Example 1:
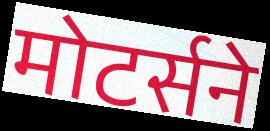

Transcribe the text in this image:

मोटर्सने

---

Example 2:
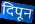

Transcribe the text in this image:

दिपून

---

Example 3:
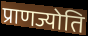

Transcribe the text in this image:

प्राणज्योति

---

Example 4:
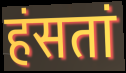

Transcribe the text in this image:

हंसतां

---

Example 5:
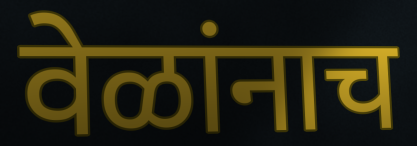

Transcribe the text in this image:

वेळांनाच